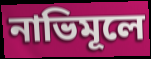
নাভিমূলে